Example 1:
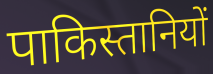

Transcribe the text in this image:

पाकिस्तानियों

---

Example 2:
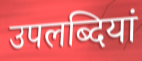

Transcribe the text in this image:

उपलब्दियां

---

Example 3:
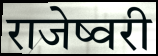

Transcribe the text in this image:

राजेष्वरी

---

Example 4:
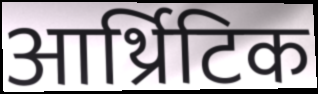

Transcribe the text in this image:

आर्थ्रिटिक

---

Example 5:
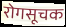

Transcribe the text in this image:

रोगसूचक